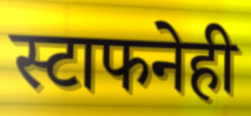
स्टाफनेही